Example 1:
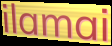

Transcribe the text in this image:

ilamai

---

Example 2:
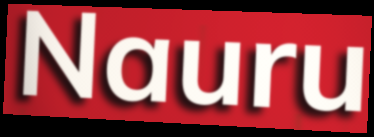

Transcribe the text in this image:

Nauru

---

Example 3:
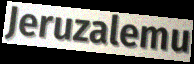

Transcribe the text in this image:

Jeruzalemu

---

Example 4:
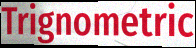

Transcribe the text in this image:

Trignometric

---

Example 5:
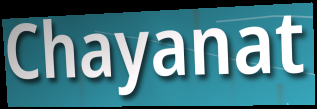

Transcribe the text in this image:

Chayanat